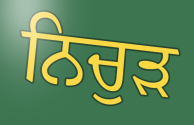
ਨਿਚੁੜ